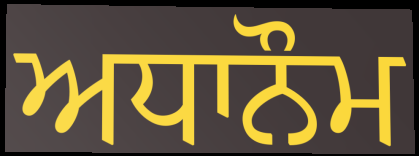
ਅਧਾਨੌਮ